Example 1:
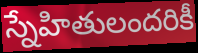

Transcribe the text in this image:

స్నేహితులందరికీ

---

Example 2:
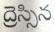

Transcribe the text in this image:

ద్రెస్సిన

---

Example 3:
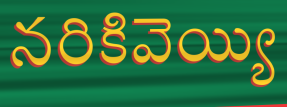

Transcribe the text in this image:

నరికివెయ్యి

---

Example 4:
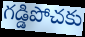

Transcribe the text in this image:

గడ్డిపోచకు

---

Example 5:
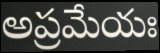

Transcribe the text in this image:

అప్రమేయః